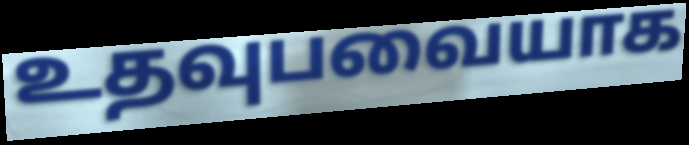
உதவுபவையாக